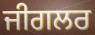
ਜੀਗਲਰ